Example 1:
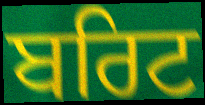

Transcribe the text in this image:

ਬਰਿਟ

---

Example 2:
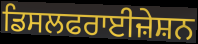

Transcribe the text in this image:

ਡਿਸਲਫਰਾਈਜ਼ੇਸ਼ਨ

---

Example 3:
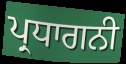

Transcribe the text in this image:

ਪ੍ਰਧਾਗਨੀ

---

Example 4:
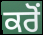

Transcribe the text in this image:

ਕਰੋਂ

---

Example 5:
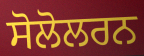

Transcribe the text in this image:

ਸੋਲੋਲਰਨ